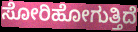
ಸೋರಿಹೋಗುತ್ತಿದೆ